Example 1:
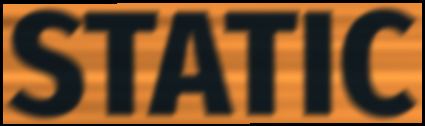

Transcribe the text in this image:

STATIC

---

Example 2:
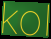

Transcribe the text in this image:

kol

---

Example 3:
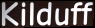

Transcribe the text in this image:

Kilduff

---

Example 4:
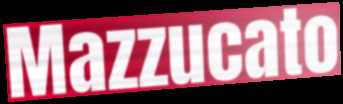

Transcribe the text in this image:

Mazzucato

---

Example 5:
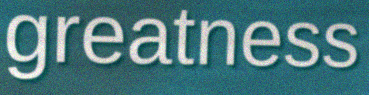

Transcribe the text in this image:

greatness